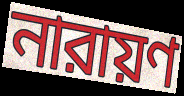
নারায়ণ